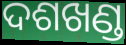
ଦଶଖଣ୍ଡ